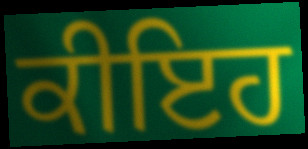
ਕੀਇਹ